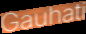
Gauhati